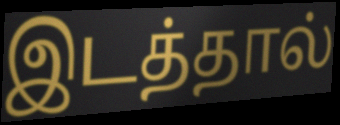
இடத்தால்